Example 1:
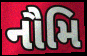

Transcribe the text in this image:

નૌમિ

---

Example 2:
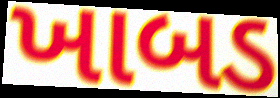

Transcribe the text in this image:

ખાબડ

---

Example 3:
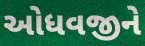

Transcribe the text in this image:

ઓધવજીને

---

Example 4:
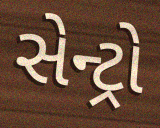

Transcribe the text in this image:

સેન્ટ્રો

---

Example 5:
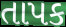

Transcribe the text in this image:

તાપક